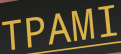
TPAMI